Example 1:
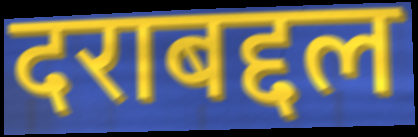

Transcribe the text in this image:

दराबद्दल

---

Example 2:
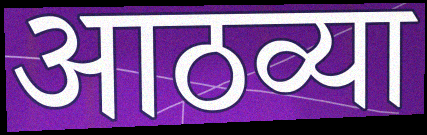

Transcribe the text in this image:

आठव्या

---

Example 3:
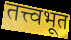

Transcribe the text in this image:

तत्त्वभूत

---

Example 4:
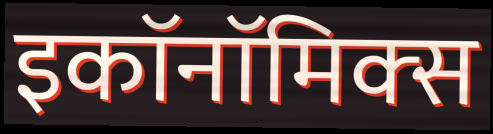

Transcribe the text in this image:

इकॉनॉमिक्‍स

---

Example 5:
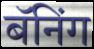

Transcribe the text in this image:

बॅनिंग